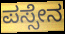
ಪಸ್ಸೇನ